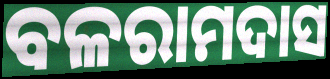
ବଳରାମଦାସ